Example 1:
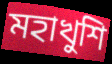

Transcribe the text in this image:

মহাখুশি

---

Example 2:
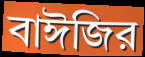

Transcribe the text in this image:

বাঈজির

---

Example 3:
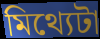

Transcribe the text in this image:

মিথ্যেটা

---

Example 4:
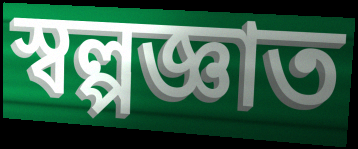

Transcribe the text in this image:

স্বল্পজ্ঞাত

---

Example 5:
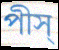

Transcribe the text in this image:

পীস্